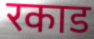
रकाड